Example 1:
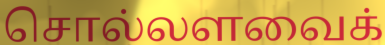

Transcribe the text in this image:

சொல்லளவைக்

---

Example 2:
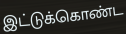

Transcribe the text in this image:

இட்டுக்கொண்ட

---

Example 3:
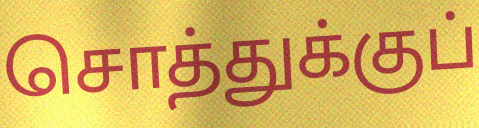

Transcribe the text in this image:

சொத்துக்குப்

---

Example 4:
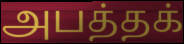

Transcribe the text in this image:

அபத்தக்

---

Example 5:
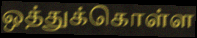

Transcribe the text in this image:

ஒத்துக்கொள்ள